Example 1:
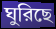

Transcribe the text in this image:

ঘুরিছে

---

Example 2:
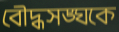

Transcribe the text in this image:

বৌদ্ধসঙ্ঘকে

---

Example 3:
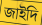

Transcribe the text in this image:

জাইদি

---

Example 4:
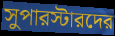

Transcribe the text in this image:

সুপারস্টারদের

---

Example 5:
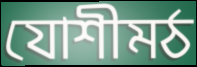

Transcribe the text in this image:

যোশীমঠ